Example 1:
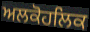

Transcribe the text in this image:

ਅਲਕੋਹਲਿਕ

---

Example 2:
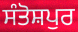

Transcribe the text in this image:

ਸੰਤੋਸ਼ਪੁਰ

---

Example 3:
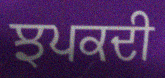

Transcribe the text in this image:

ਝਪਕਦੀ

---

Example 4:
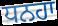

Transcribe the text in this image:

ਧਨਹਾ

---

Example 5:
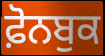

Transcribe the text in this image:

ਫ਼ੋਨਬੁਕ